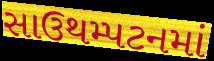
સાઉથમ્પટનમાં